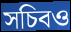
সচিবও